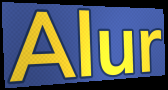
Alur